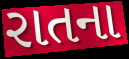
રાતના